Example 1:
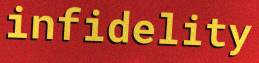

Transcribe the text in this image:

infidelity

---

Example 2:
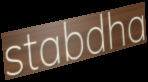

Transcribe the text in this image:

stabdha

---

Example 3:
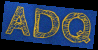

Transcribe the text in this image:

ADQ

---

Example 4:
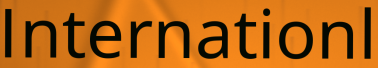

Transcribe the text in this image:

Internationl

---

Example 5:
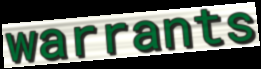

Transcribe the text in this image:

warrants